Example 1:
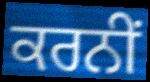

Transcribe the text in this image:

ਕਰਨੀਂ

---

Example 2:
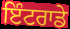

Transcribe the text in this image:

ਇੰਟਰਾਡੇ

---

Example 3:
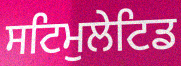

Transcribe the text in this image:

ਸਟਿਮੁਲੇਟਿਡ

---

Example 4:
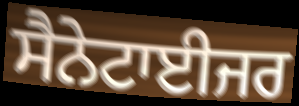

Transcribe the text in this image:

ਸੈਨੇਟਾਈਜਰ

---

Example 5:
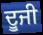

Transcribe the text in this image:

ਦੂਜੀ